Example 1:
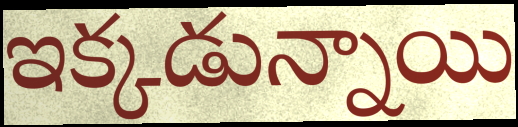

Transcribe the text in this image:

ఇక్కడున్నాయి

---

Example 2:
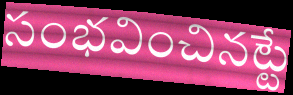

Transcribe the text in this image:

సంభవించినట్టే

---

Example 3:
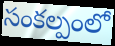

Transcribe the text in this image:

సంకల్పంలో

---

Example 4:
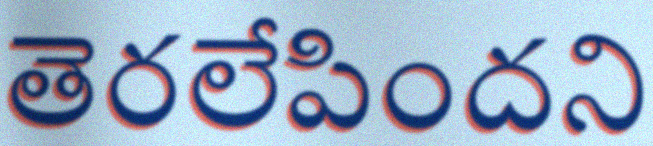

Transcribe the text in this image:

తెరలేపిందని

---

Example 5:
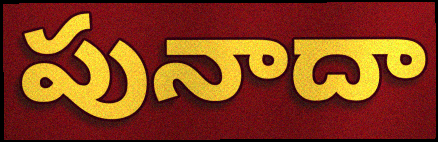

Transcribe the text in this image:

పునాదా